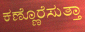
ಕಣ್ಣೊರೆಸುತ್ತಾ